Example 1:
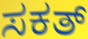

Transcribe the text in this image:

ಸಕತ್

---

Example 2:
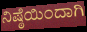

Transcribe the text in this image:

ನಿಷ್ಠೆಯಿಂದಾಗಿ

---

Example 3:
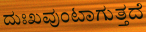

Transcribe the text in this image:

ದುಃಖವುಂಟಾಗುತ್ತದೆ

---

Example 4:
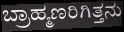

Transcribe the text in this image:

ಬ್ರಾಹ್ಮಣರಿಗಿತ್ತನು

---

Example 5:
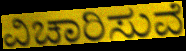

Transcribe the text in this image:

ವಿಚಾರಿಸುವೆ